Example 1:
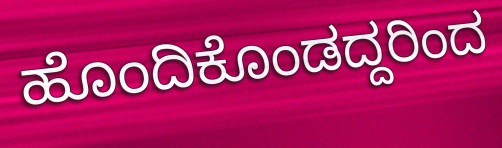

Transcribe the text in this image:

ಹೊಂದಿಕೊಂಡದ್ದರಿಂದ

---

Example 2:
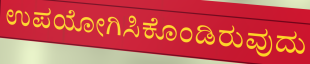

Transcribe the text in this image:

ಉಪಯೋಗಿಸಿಕೊಂಡಿರುವುದು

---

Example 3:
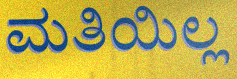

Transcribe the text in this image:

ಮತಿಯಿಲ್ಲ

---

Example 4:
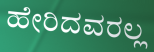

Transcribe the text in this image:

ಹೇರಿದವರಲ್ಲ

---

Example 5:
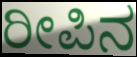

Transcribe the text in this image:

ರೀಪಿನ